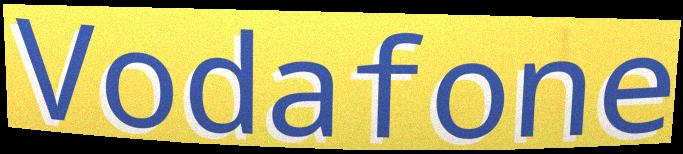
Vodafone